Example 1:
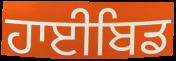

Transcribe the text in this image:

ਹਾਈਬਿਡ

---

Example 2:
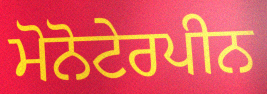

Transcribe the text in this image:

ਮੋਨੋਟੇਰਪੀਨ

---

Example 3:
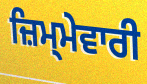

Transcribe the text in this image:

ਜ਼ਿਮ੍ਮੇਵਾਰੀ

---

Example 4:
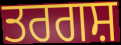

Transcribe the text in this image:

ਤਰਗਸ਼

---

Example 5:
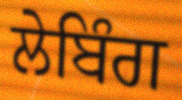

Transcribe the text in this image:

ਲੇਬਿੰਗ